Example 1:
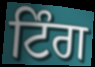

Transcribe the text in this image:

ਟਿੰਗ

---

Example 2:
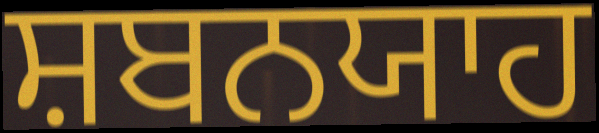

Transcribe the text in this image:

ਸ਼ਬਨਯਾਹ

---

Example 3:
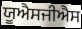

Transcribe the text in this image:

ਯੂਐਸਜੀਐਸ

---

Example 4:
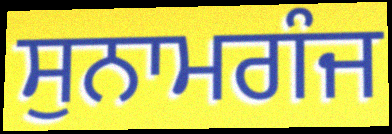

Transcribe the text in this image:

ਸੁਨਾਮਗੰਜ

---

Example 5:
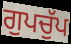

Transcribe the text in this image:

ਗੁਪਚੁੱਪ